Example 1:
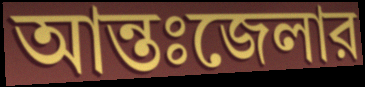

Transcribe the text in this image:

আন্তঃজেলার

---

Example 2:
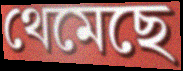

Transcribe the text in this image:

থেমেছে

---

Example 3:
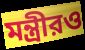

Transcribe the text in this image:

মন্ত্রীরও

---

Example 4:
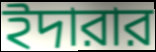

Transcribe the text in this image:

ইদারার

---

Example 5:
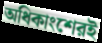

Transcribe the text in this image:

অধিকাংশেরই